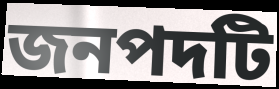
জনপদটি